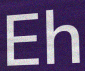
Eh